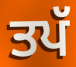
ਤਪੱ